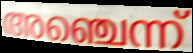
അഞ്ചെന്ന്